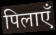
पिलाएँ